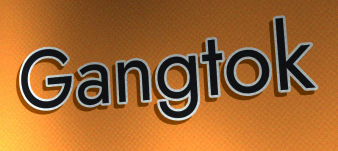
Gangtok